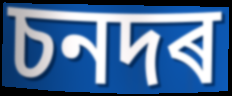
চনদৰ